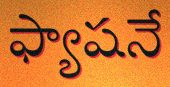
ఫ్యాషనే